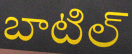
బాటిల్